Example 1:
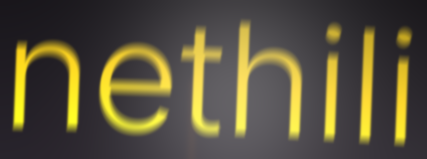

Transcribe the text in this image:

nethili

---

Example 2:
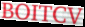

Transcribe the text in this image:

BOITCV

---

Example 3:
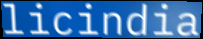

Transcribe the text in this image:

licindia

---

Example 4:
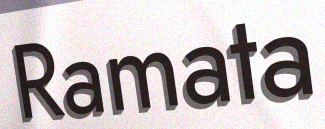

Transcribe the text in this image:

Ramata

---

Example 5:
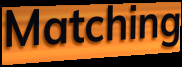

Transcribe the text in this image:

Matching